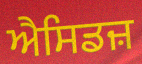
ਐਸਿਡਜ਼